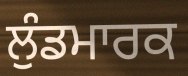
ਲੁੰਡਮਾਰਕ